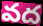
వద